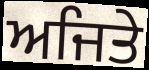
ਅਜਿਤੇ